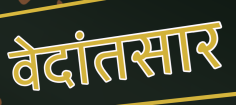
वेदांतसार